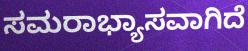
ಸಮರಾಭ್ಯಾಸವಾಗಿದೆ